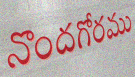
నొందగోరము